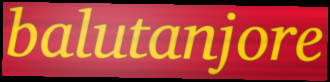
balutanjore